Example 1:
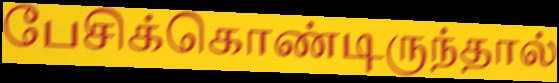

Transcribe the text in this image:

பேசிக்கொண்டிருந்தால்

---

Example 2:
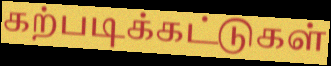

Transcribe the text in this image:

கற்படிக்கட்டுகள்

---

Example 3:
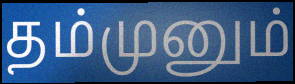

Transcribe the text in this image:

தம்முனும்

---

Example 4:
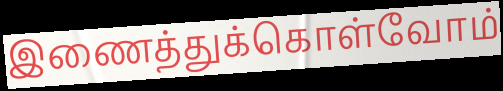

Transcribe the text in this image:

இணைத்துக்கொள்வோம்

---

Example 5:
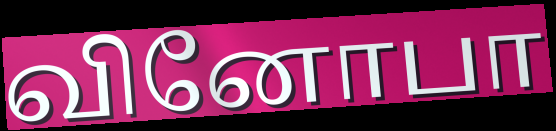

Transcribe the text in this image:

வினோபா